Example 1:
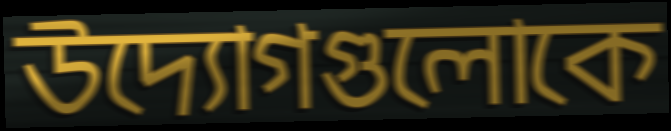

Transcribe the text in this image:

উদ্যোগগুলোকে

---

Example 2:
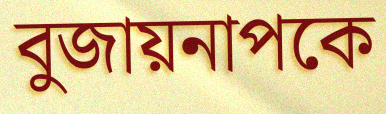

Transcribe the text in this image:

বুজায়নাপকে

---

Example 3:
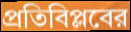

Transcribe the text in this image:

প্রতিবিপ্লবের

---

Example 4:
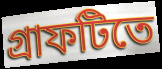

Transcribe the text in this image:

গ্রাফটিতে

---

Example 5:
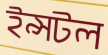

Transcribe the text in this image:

ইন্সটল